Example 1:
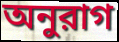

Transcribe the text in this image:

অনুরাগ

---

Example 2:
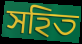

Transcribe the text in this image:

সহিত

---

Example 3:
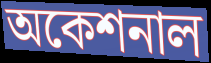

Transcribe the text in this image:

অকেশনাল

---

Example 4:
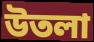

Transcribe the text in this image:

উতলা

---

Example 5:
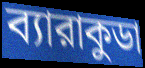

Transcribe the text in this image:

ব্যারাকুডা